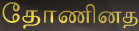
தோணினத